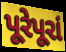
પૂરેપૂરાં